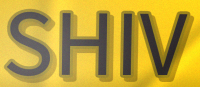
SHIV